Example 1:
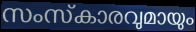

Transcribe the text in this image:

സംസ്‌കാരവുമായും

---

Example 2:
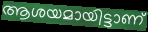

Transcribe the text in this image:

ആശയമായിട്ടാണ്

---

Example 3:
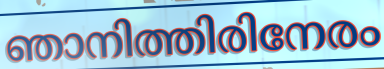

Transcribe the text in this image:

ഞാനിത്തിരിനേരം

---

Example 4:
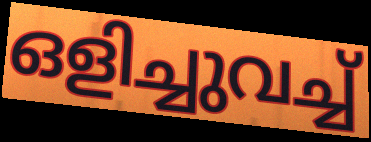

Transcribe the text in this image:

ഒളിച്ചുവച്ച്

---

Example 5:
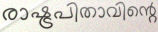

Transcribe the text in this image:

രാഷ്ട്രപിതാവിന്റെ